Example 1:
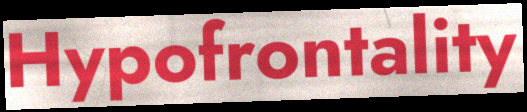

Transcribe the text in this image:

Hypofrontality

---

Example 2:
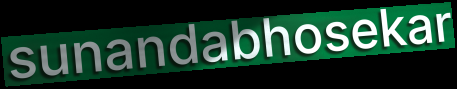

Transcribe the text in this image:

sunandabhosekar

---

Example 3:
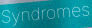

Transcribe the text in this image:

Syndromes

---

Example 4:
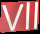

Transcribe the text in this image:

Vll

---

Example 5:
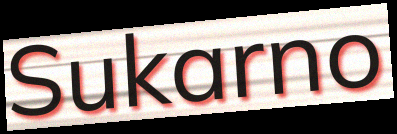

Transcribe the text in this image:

Sukarno